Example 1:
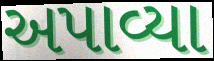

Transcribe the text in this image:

અપાવ્યા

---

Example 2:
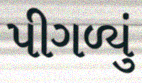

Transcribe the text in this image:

પીગળ્યું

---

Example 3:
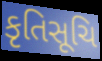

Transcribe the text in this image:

કૃતિસૂચિ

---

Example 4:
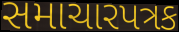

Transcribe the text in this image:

સમાચારપત્રક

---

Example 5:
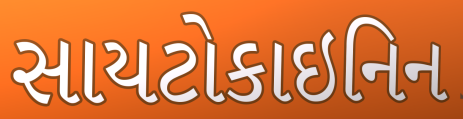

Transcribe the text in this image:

સાયટોકાઇનિન